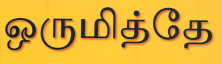
ஒருமித்தே